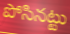
పోసినట్టు